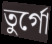
তুর্গো